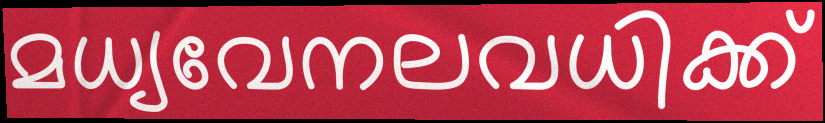
മധ്യവേനലവധിക്ക്